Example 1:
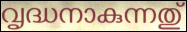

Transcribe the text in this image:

വൃദ്ധനാകുന്നതു്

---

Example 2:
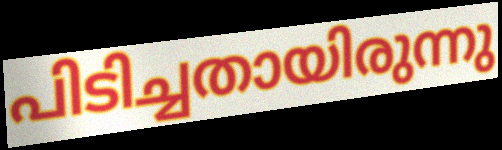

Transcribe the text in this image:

പിടിച്ചതായിരുന്നു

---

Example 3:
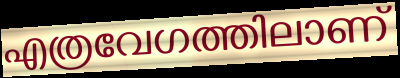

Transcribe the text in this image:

എത്രവേഗത്തിലാണ്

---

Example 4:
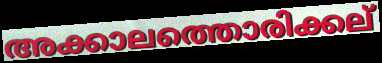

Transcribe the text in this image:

അക്കാലത്തൊരിക്കല്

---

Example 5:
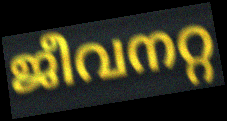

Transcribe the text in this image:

ജീവനറ്റ